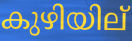
കുഴിയില്